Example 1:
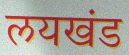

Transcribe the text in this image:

लयखंड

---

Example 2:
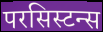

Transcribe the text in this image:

परसिस्टन्स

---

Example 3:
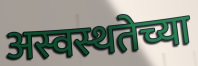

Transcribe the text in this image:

अस्वस्थतेच्या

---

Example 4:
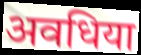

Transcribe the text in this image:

अवधिया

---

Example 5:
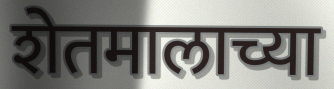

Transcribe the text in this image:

शेतमालाच्या